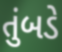
તુંબડે